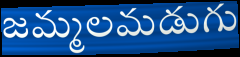
జమ్మలమడుగు